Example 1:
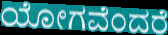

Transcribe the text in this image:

ಯೋಗವೆಂದರೆ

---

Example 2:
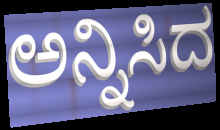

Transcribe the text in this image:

ಅನ್ನಿಸಿದ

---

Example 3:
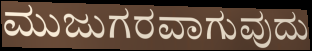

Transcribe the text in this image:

ಮುಜುಗರವಾಗುವುದು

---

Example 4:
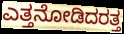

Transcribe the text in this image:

ಎತ್ತನೋಡಿದರತ್ತ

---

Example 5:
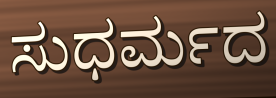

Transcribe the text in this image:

ಸುಧರ್ಮದ